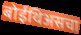
बोईथिअसचा